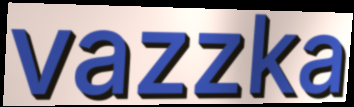
vazzka